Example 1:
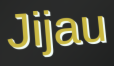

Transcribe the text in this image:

Jijau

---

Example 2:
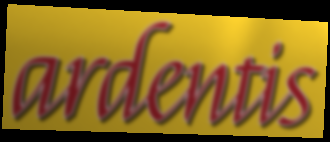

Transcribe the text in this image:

ardentis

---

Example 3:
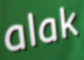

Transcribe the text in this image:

alak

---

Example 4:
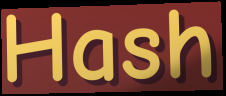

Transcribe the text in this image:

Hash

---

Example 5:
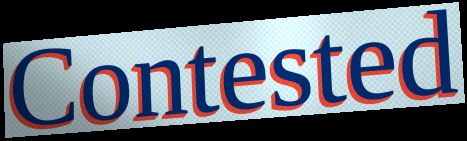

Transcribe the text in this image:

Contested